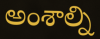
అంశాల్ని